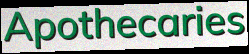
Apothecaries